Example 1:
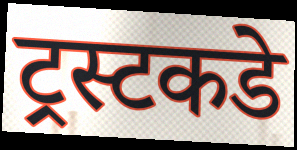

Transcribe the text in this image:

ट्रस्टकडे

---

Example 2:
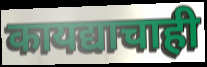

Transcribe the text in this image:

कायद्याचाही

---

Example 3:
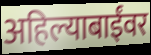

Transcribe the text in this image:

अहिल्याबाईंवर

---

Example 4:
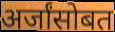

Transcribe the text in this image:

अर्जांसोबत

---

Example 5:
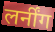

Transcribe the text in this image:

लर्नींग